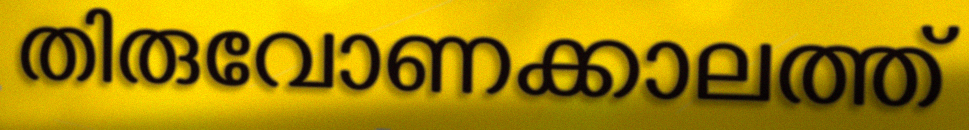
തിരുവോണക്കാലത്ത്